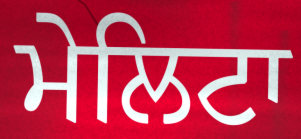
ਮੇਲਿਟਾ